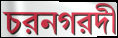
চরনগরদী